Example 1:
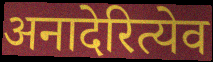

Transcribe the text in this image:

अनादेरित्येव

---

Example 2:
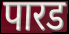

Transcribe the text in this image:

पारड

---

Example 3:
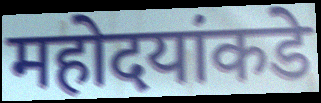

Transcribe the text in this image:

महोदयांकडे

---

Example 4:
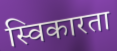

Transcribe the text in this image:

स्विकारता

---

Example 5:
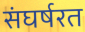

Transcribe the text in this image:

संघर्षरत